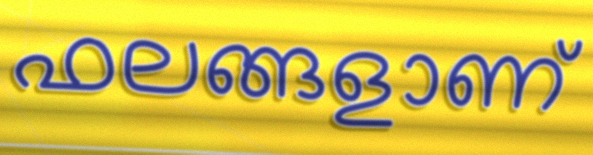
ഫലങ്ങളാണ്